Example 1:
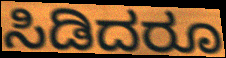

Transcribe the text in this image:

ಸಿಡಿದರೂ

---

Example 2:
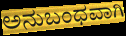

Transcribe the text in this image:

ಅನುಬಂಧವಾಗಿ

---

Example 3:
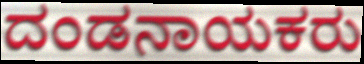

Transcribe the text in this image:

ದಂಡನಾಯಕರು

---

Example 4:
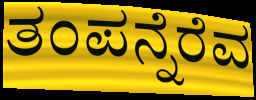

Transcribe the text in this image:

ತಂಪನ್ನೆರೆವ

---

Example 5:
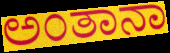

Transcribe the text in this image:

ಅಂತಾನಾ